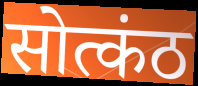
सोत्कंठ